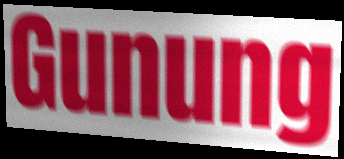
Gunung